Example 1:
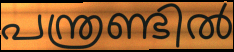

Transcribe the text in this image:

പന്ത്രണ്ടിൽ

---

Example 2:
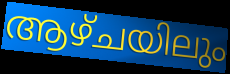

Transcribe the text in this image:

ആഴ്ചയിലും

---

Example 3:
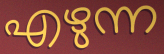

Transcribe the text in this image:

എഴുന്ന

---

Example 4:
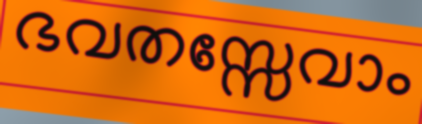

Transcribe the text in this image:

ഭവതസ്സേവാം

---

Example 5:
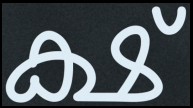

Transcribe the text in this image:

ക്ഷ്